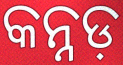
କନ୍ନଡ଼